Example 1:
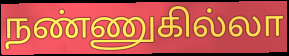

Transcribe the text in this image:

நண்ணுகில்லா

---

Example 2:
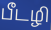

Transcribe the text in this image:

பீடழி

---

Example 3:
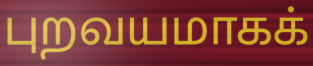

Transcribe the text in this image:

புறவயமாகக்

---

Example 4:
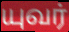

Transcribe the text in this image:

யுவர்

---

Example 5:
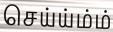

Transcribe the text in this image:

செய்ய்ம்ம்